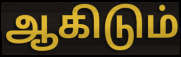
ஆகிடும்